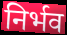
निर्भव